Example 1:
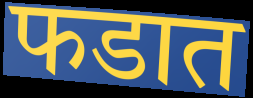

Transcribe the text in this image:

फडात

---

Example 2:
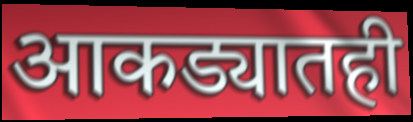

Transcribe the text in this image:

आकड्यातही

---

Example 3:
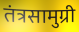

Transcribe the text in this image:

तंत्रसामुग्री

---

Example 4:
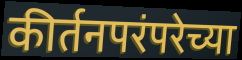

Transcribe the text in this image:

कीर्तनपरंपरेच्या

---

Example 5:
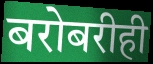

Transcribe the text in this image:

बरोबरीही